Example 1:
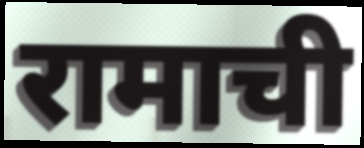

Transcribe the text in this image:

रामाची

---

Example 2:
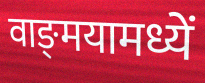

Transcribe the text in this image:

वाङ्‌मयामध्यें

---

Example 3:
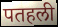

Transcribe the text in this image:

पतहली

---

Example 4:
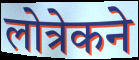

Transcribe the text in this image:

लोत्रेकने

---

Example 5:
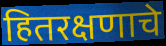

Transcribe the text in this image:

हितरक्षणाचे